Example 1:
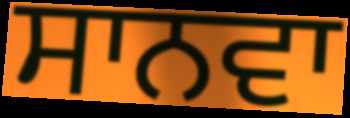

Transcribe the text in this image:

ਸਾਨਵਾ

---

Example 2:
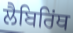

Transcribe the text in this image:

ਲੈਬਿਰਿਂਥ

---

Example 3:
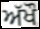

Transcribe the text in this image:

ਅੱਖੌ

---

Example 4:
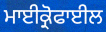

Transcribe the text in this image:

ਮਾਈਕ੍ਰੋਫਾਈਲ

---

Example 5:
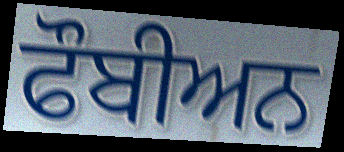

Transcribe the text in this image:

ਫੌਬੀਅਨ